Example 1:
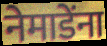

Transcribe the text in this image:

नेमाडेंना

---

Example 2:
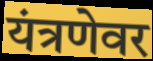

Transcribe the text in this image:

यंत्रणेवर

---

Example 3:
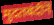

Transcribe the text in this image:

मुदतबंदीनें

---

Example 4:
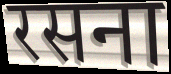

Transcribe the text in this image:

रसना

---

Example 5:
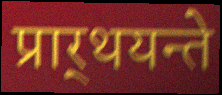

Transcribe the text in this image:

प्रार्थयन्ते